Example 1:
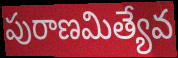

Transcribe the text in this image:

పురాణమిత్యేవ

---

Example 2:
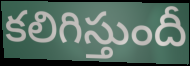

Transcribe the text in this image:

కలిగిస్తుందీ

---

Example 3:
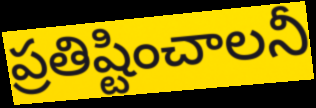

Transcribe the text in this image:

ప్రతిష్టించాలనీ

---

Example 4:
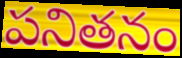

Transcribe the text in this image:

పనితనం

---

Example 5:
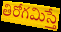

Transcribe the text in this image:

తిరోగమిస్తే